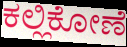
ಕಲ್ಲಿಕೋಣೆ